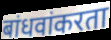
बांधवांकरता